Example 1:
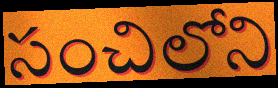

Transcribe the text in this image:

సంచిలోని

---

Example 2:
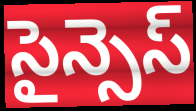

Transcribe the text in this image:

సైన్సెస్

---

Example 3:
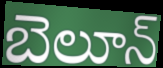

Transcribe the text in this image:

బెలూన్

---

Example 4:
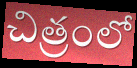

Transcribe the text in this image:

చిత్రంలో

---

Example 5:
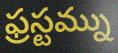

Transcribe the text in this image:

ఫ్రస్టమ్ను